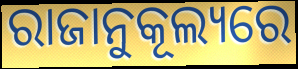
ରାଜାନୁକୂଲ୍ୟରେ